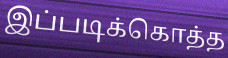
இப்படிக்கொத்த